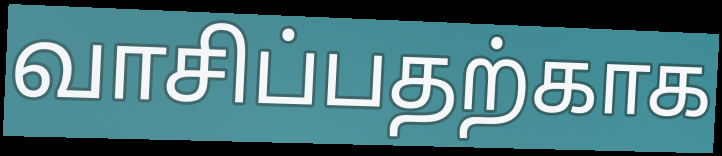
வாசிப்பதற்காக